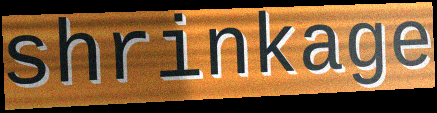
shrinkage